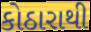
કોઠારાથી